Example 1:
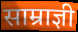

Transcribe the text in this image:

साम्राज्ञी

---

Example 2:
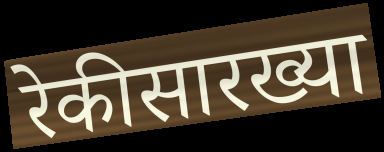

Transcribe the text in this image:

रेकीसारख्या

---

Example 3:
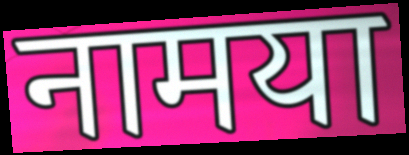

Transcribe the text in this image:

नामया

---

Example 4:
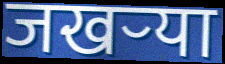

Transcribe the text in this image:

जखऱ्या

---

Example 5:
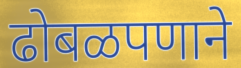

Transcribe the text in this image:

ढोबळपणाने